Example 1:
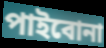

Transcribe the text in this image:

পাইবোনা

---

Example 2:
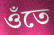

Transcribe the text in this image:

ওঁতে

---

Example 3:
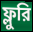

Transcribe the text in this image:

ফ্লুরি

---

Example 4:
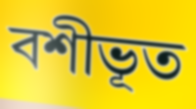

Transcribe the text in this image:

বশীভূত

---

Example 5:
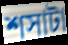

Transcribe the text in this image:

শসাটা